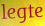
legte